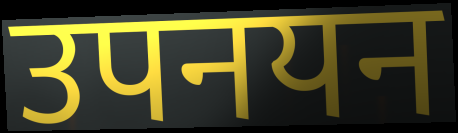
उपनयन